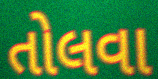
તોલવા